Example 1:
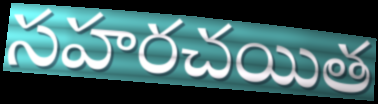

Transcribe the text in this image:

సహరచయిత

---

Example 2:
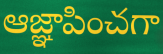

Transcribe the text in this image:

ఆజ్ఞాపించగా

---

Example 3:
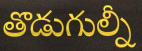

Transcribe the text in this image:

తొడుగుల్నీ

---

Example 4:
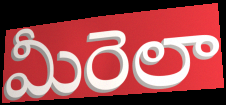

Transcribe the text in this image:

మీరెలా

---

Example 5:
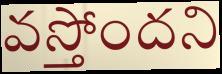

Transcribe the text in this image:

వస్తోందని